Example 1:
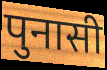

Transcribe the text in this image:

पुनासी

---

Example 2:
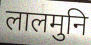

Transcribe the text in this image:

लालमुनि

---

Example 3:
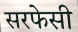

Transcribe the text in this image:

सरफेसी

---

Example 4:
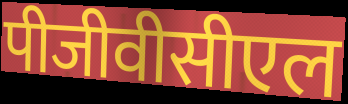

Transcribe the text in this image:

पीजीवीसीएल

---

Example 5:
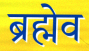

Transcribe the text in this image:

ब्रह्मेव